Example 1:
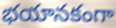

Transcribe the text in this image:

భయానకంగా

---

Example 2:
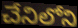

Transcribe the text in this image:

చేనిలోని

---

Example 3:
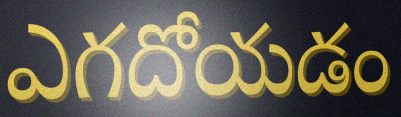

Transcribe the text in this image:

ఎగదోయడం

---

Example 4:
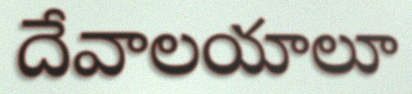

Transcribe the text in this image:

దేవాలయాలూ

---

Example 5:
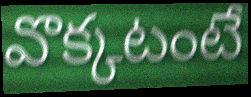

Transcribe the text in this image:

వొక్కటంటే